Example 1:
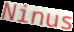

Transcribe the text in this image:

Ninus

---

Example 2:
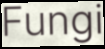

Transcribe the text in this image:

Fungi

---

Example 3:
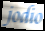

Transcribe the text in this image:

jodio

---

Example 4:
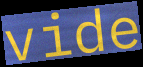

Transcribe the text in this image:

vide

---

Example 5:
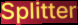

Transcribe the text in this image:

Splitter